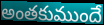
అంతకుముందే